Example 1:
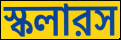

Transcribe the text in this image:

স্কলারস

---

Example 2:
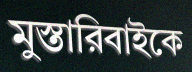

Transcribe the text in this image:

মুস্তারিবাইকে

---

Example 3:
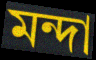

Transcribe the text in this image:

মন্দা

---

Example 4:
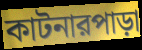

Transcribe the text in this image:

কাটনারপাড়া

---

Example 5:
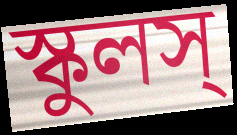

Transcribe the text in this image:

স্কুলস্